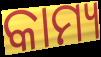
କାମ୍ୟ